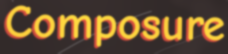
Composure